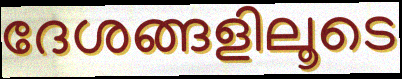
ദേശങ്ങളിലൂടെ